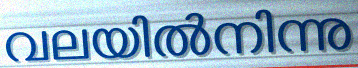
വലയിൽനിന്നു